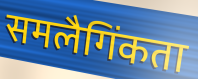
समलैगिंकता